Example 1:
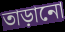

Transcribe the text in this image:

তাড়ানো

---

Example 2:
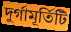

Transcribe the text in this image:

দুর্গামূর্তিটি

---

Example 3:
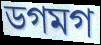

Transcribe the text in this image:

ডগমগ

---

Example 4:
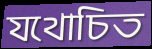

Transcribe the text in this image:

যথোচিত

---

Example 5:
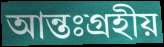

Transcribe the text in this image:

আন্তঃগ্রহীয়